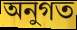
অনুগত